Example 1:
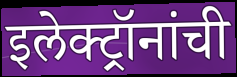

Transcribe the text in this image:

इलेक्ट्रॉनांची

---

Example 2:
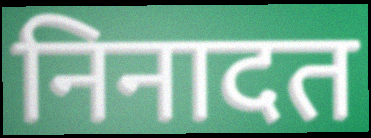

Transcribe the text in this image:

निनादत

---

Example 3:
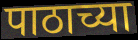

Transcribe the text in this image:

पाठाच्या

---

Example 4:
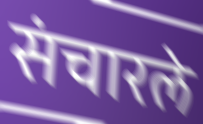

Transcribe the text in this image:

संचारले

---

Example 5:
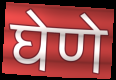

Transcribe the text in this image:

घेणे